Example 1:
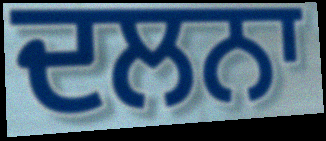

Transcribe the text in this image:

ਦਲਨਾ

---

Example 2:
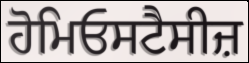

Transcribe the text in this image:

ਹੋਮਿਓਸਟੈਸੀਜ਼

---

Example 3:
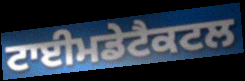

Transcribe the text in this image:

ਟਾਈਮਡੇਟੈਕਟਲ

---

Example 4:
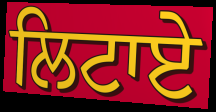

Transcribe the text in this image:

ਲਿਟਾਏ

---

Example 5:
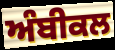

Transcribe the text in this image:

ਅੰਬੀਕਲ